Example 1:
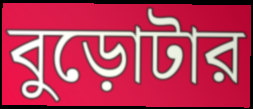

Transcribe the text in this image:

বুড়োটার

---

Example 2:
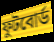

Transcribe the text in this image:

ফুটবোর্ড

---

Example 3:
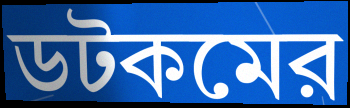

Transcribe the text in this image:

ডটকমের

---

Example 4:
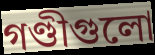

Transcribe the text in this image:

গণ্ডীগুলো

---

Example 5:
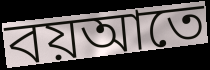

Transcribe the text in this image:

বয়আতে